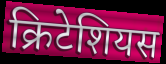
क्रिटेशियस